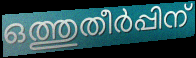
ഒത്തുതീർപ്പിന്